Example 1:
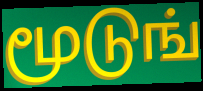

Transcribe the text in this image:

மூடுங்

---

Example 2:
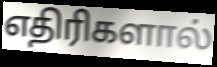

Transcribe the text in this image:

எதிரிகளால்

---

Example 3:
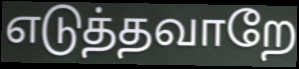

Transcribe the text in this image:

எடுத்தவாறே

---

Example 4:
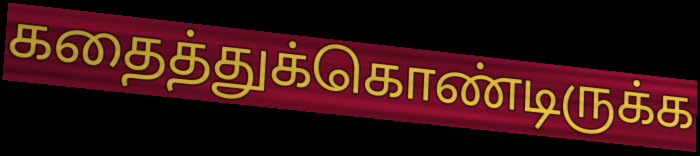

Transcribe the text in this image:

கதைத்துக்கொண்டிருக்க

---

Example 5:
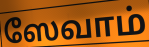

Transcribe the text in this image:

ஸேவாம்